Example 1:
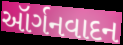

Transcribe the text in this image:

ઑર્ગનવાદન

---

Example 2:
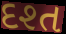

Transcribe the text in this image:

દશ્ત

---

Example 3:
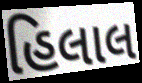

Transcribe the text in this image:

હિલાલ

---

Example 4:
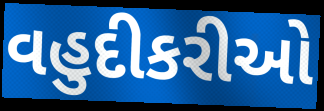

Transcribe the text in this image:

વહુદીકરીઓ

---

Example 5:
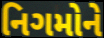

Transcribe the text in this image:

નિગમોને